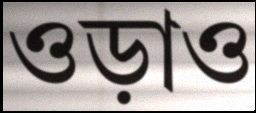
ওড়াও